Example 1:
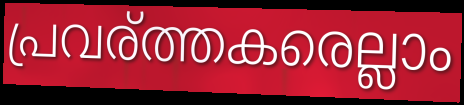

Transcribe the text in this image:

പ്രവര്ത്തകരെല്ലാം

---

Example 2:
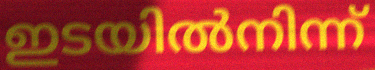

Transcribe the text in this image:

ഇടയിൽനിന്ന്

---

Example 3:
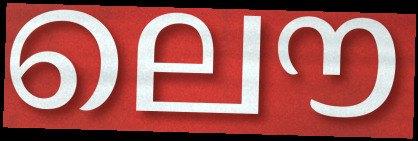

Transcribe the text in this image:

ലൌ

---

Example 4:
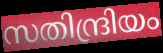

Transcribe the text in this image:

സതിന്ദ്രിയം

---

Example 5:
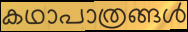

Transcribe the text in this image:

കഥാപാത്രങ്ങൾ